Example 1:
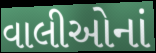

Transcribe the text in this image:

વાલીઓનાં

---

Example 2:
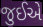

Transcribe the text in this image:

જુઈએ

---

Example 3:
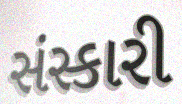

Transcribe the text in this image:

સંસ્કારી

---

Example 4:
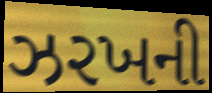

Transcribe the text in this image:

ઝરખની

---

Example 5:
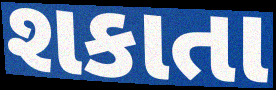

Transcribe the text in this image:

શકાતા